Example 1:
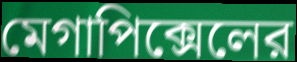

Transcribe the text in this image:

মেগাপিক্সেলের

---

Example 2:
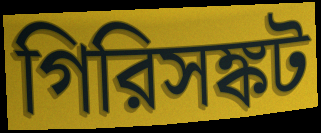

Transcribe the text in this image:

গিরিসঙ্কট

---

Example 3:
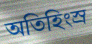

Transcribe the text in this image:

অতিহিংস্র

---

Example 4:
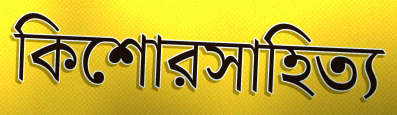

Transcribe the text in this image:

কিশোরসাহিত্য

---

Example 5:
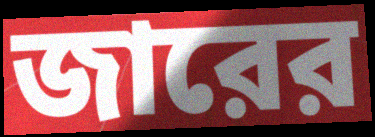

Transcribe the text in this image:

জারের